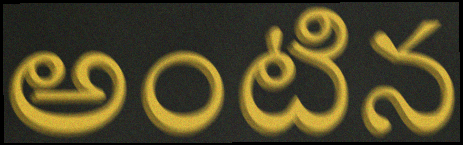
అంటిన